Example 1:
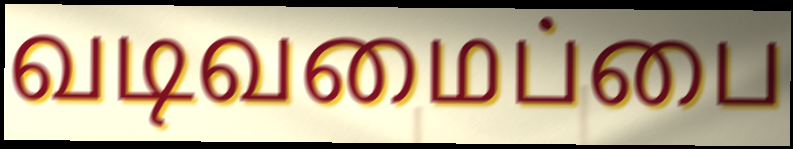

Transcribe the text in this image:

வடிவமைப்பை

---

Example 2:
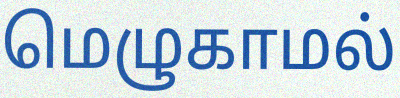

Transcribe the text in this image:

மெழுகாமல்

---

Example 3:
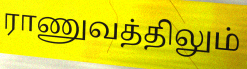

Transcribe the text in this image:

ராணுவத்திலும்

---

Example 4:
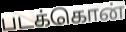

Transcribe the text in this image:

படக்கொன்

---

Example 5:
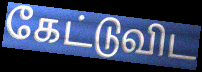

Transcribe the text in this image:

கேட்டுவிட